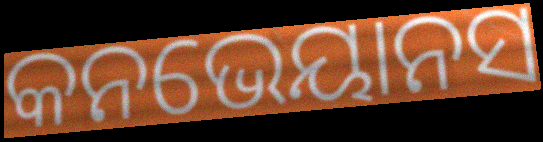
କନଭେୟାନସ